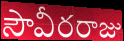
సౌవీరరాజు